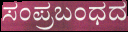
ಸಂಪ್ರಬಂಧದ